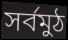
সৰ্বমুঠ